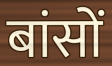
बांसों